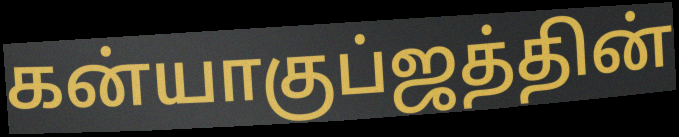
கன்யாகுப்ஜத்தின்